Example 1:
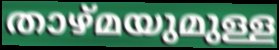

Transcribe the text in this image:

താഴ്മയുമുള്ള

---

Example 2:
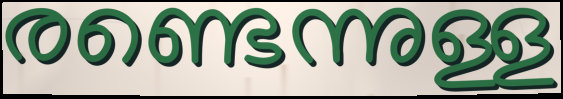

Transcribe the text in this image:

രണ്ടെന്നുള്ള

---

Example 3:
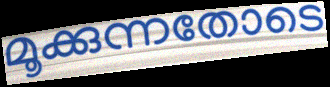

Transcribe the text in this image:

മൂക്കുന്നതോടെ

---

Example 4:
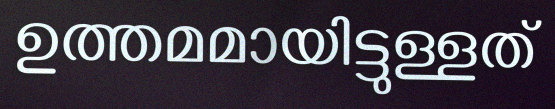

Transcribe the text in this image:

ഉത്തമമായിട്ടുള്ളത്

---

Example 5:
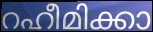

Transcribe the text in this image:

റഹീമിക്കാ